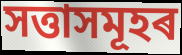
সত্তাসমূহৰ